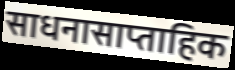
साधनासाप्ताहिक